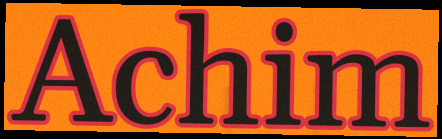
Achim